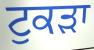
ਟੁਕਡ਼ਾ